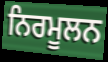
ਨਿਰਮੂਲਨ